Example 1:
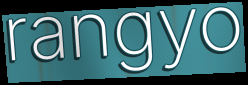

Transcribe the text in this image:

rangyo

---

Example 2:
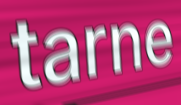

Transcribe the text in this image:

tarne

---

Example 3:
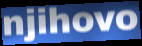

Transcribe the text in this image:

njihovo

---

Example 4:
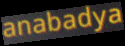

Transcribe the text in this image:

anabadya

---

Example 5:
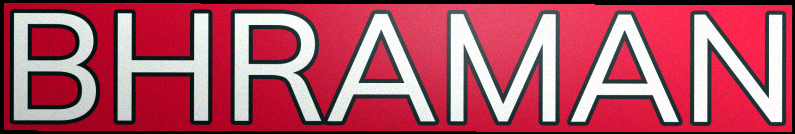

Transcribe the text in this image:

BHRAMAN